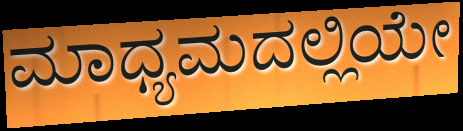
ಮಾಧ್ಯಮದಲ್ಲಿಯೇ